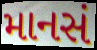
માનસં